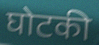
घोटकी